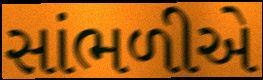
સાંભળીએ